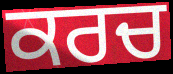
ਕਰਚ